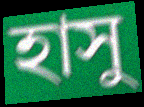
হাসু